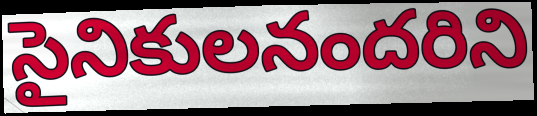
సైనికులనందరిని